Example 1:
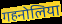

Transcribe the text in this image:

गहनोलिया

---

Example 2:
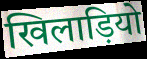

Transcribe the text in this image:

खिलाड़ियो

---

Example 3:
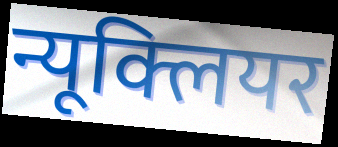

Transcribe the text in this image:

न्‍यूक्लियर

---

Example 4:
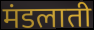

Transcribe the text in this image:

मंडलाती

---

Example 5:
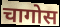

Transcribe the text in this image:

चागोस